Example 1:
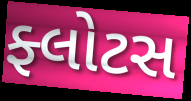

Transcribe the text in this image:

ફ્લોટસ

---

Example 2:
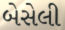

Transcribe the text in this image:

બેસેલી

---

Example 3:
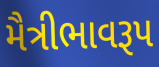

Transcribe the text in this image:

મૈત્રીભાવરૂપ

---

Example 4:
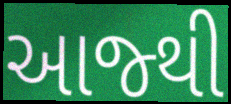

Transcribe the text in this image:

આજ્થી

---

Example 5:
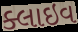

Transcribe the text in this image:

ક્લાઇવ